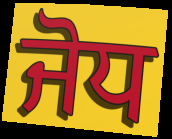
ਜੋਧ